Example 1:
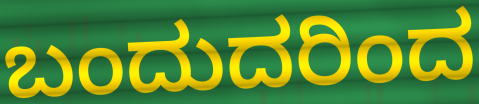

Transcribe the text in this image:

ಬಂದುದರಿಂದ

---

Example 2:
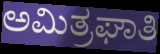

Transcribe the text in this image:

ಅಮಿತ್ರಘಾತಿ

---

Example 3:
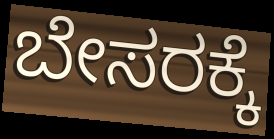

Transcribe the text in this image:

ಬೇಸರಕ್ಕೆ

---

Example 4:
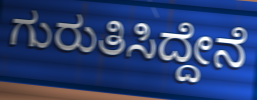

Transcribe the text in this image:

ಗುರುತಿಸಿದ್ದೇನೆ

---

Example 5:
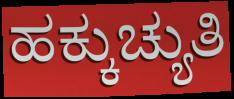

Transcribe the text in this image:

ಹಕ್ಕುಚ್ಯುತಿ